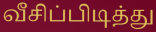
வீசிப்பிடித்து